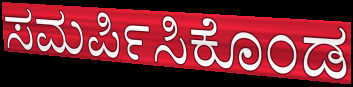
ಸಮರ್ಪಿಸಿಕೊಂಡ